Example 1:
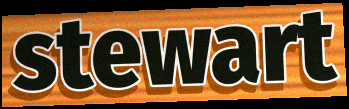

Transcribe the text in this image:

stewart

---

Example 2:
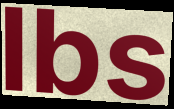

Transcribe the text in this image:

lbs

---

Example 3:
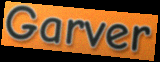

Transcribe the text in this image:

Garver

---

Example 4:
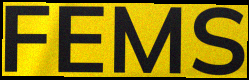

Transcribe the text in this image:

FEMS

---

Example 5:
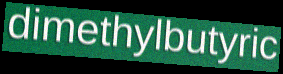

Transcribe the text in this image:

dimethylbutyric